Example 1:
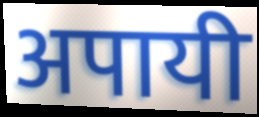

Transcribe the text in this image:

अपायी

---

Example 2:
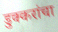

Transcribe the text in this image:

डुक्करांचा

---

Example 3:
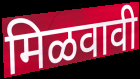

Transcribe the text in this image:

मिळवावी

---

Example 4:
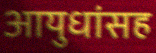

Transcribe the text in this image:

आयुधांसह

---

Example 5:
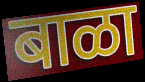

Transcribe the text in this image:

बाळा